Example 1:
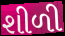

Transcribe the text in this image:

શીળી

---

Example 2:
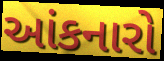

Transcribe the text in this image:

આંકનારો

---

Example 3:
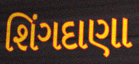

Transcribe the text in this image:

શિંગદાણા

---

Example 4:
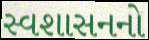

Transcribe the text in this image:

સ્વશાસનનો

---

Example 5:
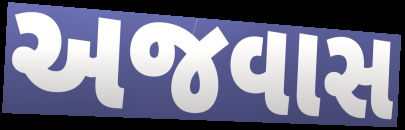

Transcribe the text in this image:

અજવાસ